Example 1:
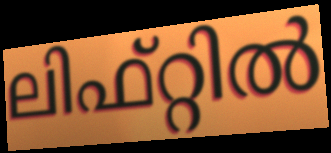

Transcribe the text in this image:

ലിഫ്റ്റിൽ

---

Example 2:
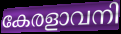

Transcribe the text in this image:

കേരളാവനി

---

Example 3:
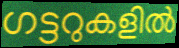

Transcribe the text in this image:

ഗട്ടറുകളിൽ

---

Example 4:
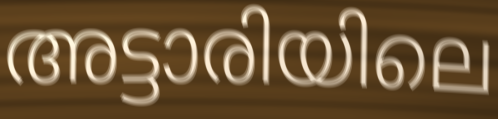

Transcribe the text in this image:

അട്ടാരിയിലെ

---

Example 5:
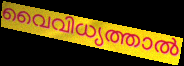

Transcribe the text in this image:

വൈവിധ്യത്താൽ